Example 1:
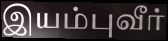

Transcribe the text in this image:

இயம்புவீர்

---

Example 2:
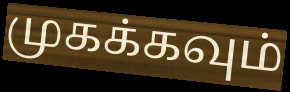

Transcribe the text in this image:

முகக்கவும்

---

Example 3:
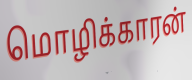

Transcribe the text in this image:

மொழிக்காரன்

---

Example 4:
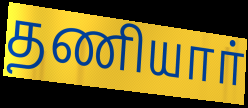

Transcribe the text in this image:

தணியார்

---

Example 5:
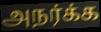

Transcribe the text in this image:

அநர்க்க